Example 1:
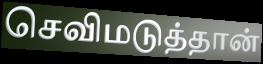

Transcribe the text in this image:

செவிமடுத்தான்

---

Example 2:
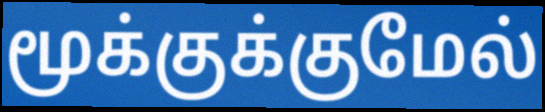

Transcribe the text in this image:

மூக்குக்குமேல்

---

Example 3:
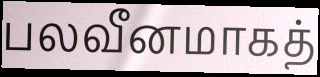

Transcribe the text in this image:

பலவீனமாகத்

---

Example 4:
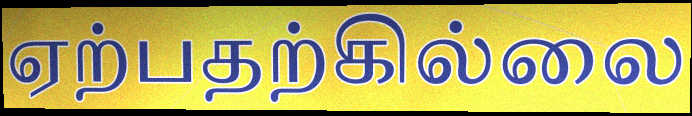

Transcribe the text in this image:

ஏற்பதற்கில்லை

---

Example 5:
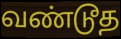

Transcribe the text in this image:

வண்டூத